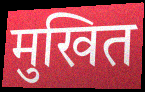
मुखित